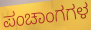
ಪಂಚಾಂಗಗಳ